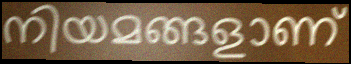
നിയമങ്ങളാണ്